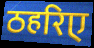
ठहरिए